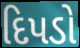
દિપડો